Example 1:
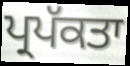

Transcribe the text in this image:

ਪ੍ਰਪੱਕਤਾ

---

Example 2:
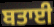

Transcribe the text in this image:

ਬਤਾਈ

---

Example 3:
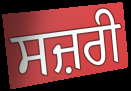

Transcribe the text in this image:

ਸਜ਼ਰੀ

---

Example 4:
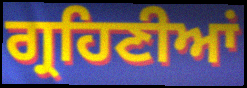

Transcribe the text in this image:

ਗ੍ਰਹਿਣੀਆਂ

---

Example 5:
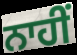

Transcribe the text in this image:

ਨਾਹੀਂ